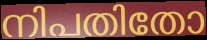
നിപതിതോ